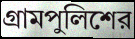
গ্রামপুলিশের